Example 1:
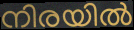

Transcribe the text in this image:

നിരയിൽ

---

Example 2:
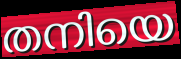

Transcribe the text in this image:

തനിയെ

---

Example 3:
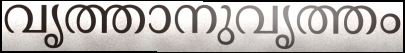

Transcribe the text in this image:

വൃത്താനുവൃത്തം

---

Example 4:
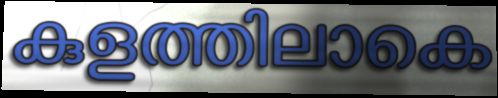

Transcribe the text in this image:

കുളത്തിലാകെ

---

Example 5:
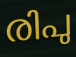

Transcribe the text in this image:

രിപു